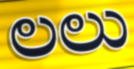
లలు